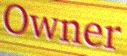
Owner